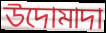
উদোমাদা